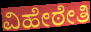
ವಿಹೇಠೇತಿ